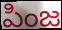
పింజ